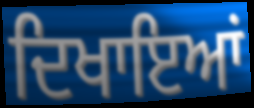
ਦਿਖਾਇਆਂ